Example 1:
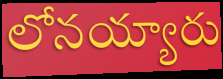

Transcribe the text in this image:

లోనయ్యారు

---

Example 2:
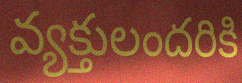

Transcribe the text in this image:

వ్యక్తులందరికి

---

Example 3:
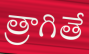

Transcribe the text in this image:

త్రాగితే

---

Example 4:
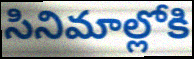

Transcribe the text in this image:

సినిమాల్లోకి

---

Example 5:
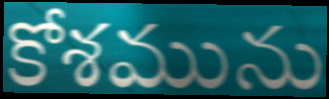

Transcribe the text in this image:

కోశమును